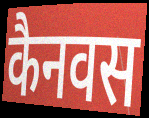
कैनवस